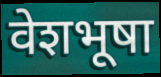
वेशभूषा